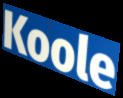
Koole